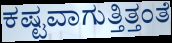
ಕಷ್ಟವಾಗುತ್ತಿತ್ತಂತೆ